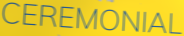
CEREMONIAL